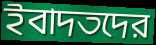
ইবাদতদের